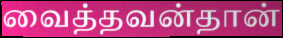
வைத்தவன்தான்